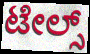
ಟೇಲ್ಸ್